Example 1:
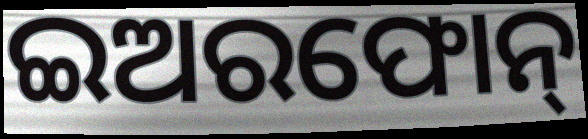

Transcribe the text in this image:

ଇଅରଫୋନ୍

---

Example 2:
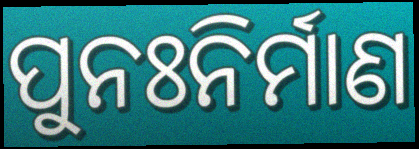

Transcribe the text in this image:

ପୁନଃନିର୍ମାଣ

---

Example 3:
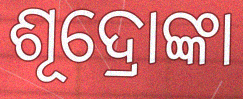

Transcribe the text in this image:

ଶୂଦ୍ରୋଙ୍କା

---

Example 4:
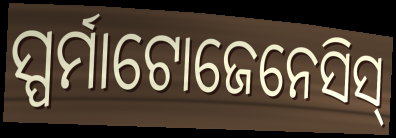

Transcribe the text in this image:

ସ୍ପର୍ମାଟୋଜେନେସିସ୍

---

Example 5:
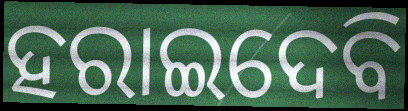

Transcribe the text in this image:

ହରାଇଦେବି